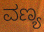
ವಣ್ಯ